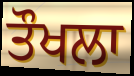
ਤੌਖਲਾ